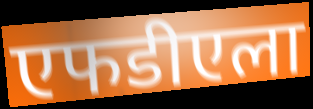
एफडीएला